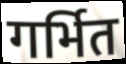
गर्भित